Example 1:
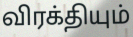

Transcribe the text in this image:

விரக்தியும்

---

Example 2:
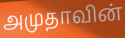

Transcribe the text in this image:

அமுதாவின்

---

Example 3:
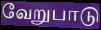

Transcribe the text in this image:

வேறுபாடு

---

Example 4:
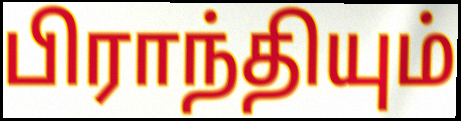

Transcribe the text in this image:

பிராந்தியும்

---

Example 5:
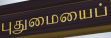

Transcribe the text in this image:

புதுமையைப்